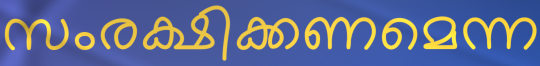
സംരക്ഷിക്കണമെന്ന